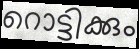
റൊട്ടിക്കും